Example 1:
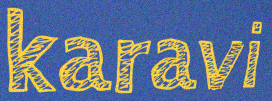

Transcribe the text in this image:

karavi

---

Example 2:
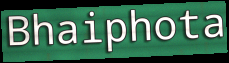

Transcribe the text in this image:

Bhaiphota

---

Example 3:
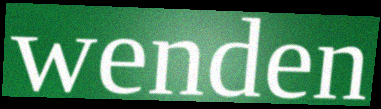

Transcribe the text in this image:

wenden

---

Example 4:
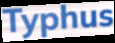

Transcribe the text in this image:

Typhus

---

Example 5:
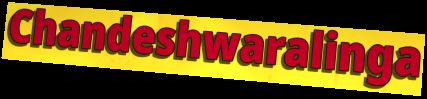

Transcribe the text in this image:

Chandeshwaralinga